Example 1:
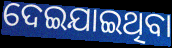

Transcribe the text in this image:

ଦେଇଯାଇଥିବା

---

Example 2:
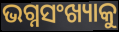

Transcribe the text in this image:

ଭଗ୍ନସଂଖ୍ୟାକୁ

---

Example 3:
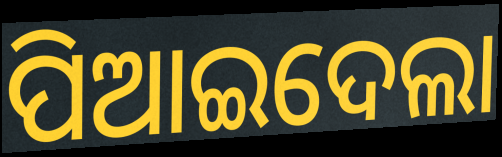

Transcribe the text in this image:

ପିଆଇଦେଲା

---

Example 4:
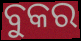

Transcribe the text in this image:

ବୁକର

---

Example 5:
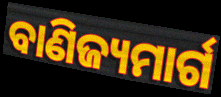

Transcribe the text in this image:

ବାଣିଜ୍ୟମାର୍ଗ